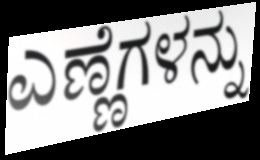
ಎಣ್ಣೆಗಳನ್ನು